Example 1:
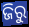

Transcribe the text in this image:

ଜିରୁ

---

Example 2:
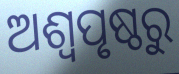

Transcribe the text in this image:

ଅଶ୍ଵପୃଷ୍ଠରୁ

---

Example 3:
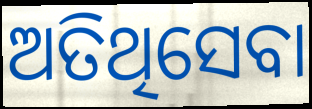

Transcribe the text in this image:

ଅତିଥିସେବା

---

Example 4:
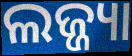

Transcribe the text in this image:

ଲଜ୍ଜ୍ୟା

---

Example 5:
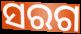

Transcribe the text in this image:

ସରଗ